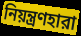
নিয়ন্ত্রণহারা